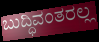
ಬುದ್ಧಿವಂತರಲ್ಲ